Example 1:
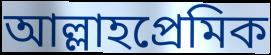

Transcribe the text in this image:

আল্লাহপ্রেমিক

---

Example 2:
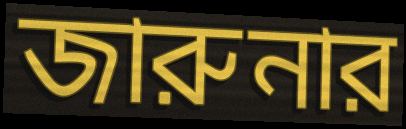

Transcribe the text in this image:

জারুনার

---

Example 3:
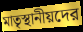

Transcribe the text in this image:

মাতৃস্থানীয়দের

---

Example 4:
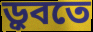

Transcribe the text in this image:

ড়ুবতে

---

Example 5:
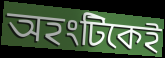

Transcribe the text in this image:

অহংটিকেই